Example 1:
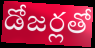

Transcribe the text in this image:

డోజర్లతో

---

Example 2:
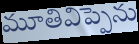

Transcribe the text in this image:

మూతివిప్పెను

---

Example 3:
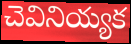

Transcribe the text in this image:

చెవినియ్యక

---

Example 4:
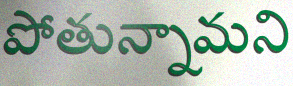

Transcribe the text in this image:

పోతున్నామని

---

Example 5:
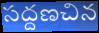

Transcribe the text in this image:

సద్దణచిన